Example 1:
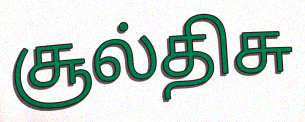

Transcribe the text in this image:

சூல்திசு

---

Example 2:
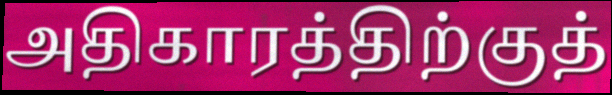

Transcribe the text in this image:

அதிகாரத்திற்குத்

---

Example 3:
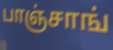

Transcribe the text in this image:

பாஞ்சாங்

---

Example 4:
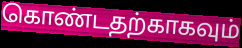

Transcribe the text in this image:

கொண்டதற்காகவும்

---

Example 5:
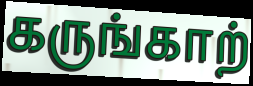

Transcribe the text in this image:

கருங்காற்